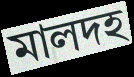
মালদহ